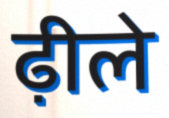
ढ़ीले